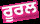
ਰੂਰਲ